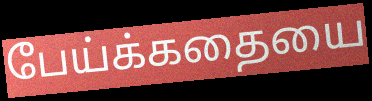
பேய்க்கதையை